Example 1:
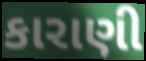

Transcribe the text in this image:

કારાણી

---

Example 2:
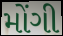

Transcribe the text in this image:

મોંગી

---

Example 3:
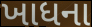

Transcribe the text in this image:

ખાધના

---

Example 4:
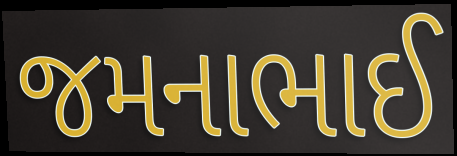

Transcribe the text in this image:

જમનાભાઈ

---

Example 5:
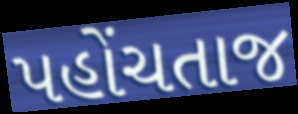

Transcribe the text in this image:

પહોંચતાજ